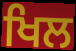
ਖਿਲ